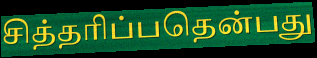
சித்தரிப்பதென்பது